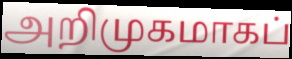
அறிமுகமாகப்